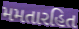
મમતારહિત